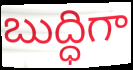
బుద్ధిగా